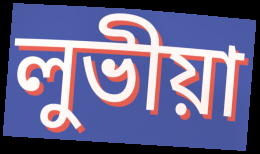
লুভীয়া